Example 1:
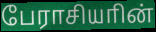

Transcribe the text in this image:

பேராசியரின்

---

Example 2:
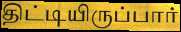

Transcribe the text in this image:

திட்டியிருப்பார்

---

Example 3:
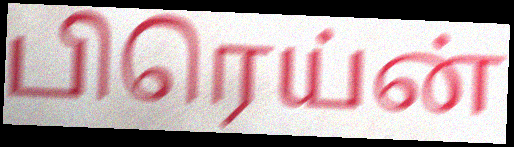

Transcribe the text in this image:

பிரெய்ன்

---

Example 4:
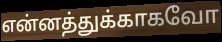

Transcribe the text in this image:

என்னத்துக்காகவோ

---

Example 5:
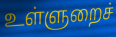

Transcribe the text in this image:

உள்ளுறைச்